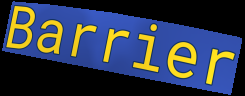
Barrier